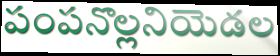
పంపనొల్లనియెడల